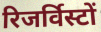
रिजर्विस्टों